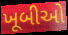
ખૂબીઓ